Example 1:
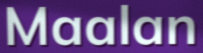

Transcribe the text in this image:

Maalan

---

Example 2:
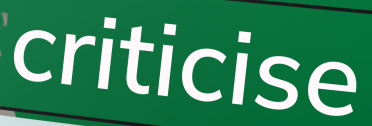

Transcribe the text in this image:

criticise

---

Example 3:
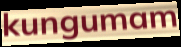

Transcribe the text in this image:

kungumam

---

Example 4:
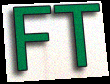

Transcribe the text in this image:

FT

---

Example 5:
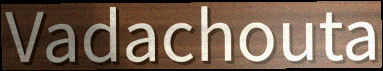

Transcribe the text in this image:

Vadachouta